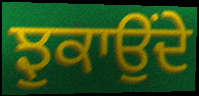
ਝੁਕਾਉਂਦੇ